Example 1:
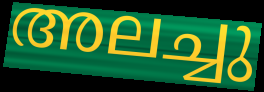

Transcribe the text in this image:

അലച്ചു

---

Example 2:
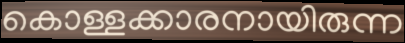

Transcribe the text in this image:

കൊള്ളക്കാരനായിരുന്ന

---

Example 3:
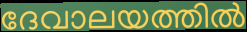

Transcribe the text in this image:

ദേവാലയത്തിൽ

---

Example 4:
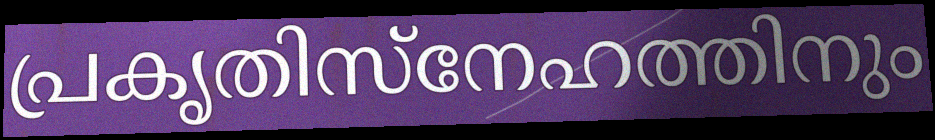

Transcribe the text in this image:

പ്രകൃതിസ്നേഹത്തിനും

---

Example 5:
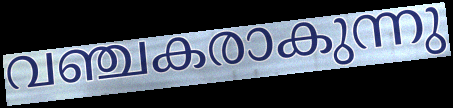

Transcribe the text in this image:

വഞ്ചകരാകുന്നു